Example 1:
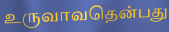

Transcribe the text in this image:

உருவாவதென்பது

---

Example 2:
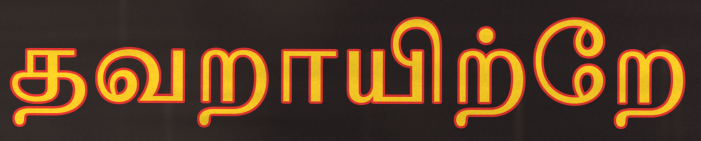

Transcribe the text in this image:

தவறாயிற்றே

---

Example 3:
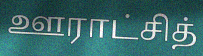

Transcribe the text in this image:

ஊராட்சித்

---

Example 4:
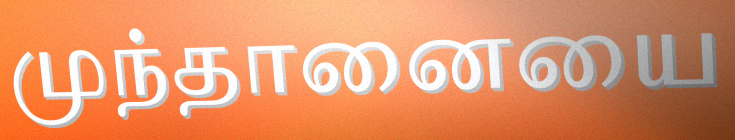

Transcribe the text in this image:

முந்தானையை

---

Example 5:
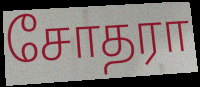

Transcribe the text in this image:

சோதரா